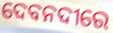
ଦେବନଦୀରେ